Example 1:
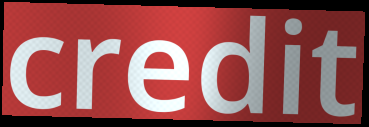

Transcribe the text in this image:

credit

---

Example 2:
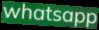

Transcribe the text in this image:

whatsapp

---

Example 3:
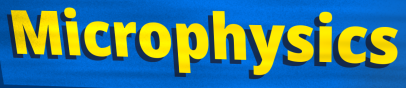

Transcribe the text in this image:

Microphysics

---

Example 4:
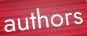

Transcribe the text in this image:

authors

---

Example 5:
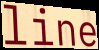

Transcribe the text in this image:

line